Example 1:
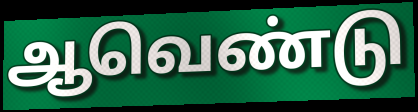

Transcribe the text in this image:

ஆவெண்டு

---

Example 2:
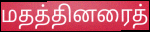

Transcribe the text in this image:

மதத்தினரைத்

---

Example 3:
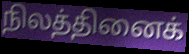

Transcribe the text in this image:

நிலத்தினைக்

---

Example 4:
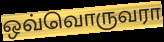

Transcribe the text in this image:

ஒவ்வொருவரா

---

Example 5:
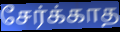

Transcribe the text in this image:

சேர்க்காத